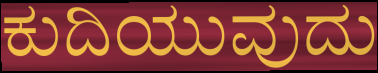
ಕುದಿಯುವುದು